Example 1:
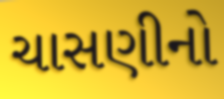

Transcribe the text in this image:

ચાસણીનો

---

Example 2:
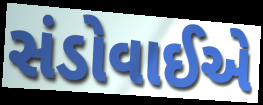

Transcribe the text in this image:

સંડોવાઈએ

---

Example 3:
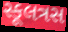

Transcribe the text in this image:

સ્કૂલત્રસ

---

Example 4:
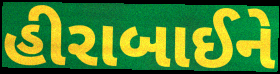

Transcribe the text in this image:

હીરાબાઈને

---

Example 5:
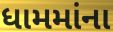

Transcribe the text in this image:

ધામમાંના